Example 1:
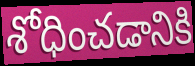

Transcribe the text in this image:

శోధించడానికి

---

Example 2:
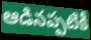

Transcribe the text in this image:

ఆడినప్పటికీ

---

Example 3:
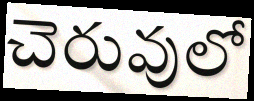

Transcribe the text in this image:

చెరువులో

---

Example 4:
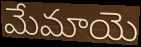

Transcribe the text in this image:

మేమాయె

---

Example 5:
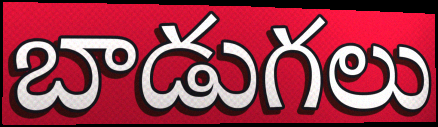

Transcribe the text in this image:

బాడుగలు